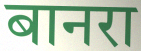
बानरा